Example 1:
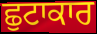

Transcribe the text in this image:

ਛੁਟਾਕਾਰ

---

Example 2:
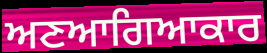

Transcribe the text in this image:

ਅਣਆਗਿਆਕਾਰ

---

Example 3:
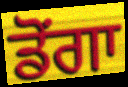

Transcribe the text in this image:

ਡੋਂਗਾ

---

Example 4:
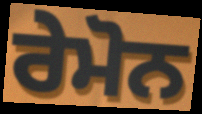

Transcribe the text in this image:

ਰੇਮੋਨ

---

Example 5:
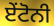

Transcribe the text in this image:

ਏਂਟੋਨੀ